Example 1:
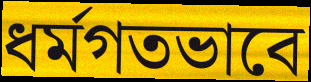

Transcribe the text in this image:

ধর্মগতভাবে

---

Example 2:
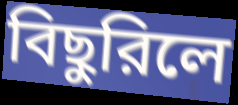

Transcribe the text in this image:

বিছুরিলে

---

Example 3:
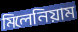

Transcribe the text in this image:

মিলেনিয়াম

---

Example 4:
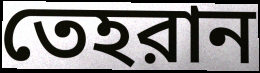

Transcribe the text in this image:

তেহরান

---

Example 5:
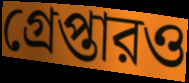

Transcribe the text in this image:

গ্রেপ্তারও